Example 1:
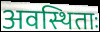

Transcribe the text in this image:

अवस्थिताः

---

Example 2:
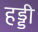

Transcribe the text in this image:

हड्डी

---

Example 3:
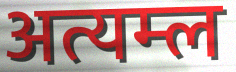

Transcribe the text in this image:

अत्यम्ल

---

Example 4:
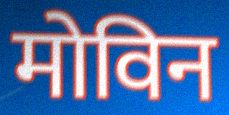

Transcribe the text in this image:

मोविन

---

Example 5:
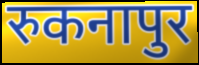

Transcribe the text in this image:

रुकनापुर